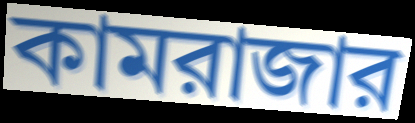
কামরাজার